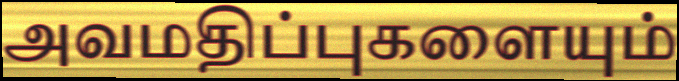
அவமதிப்புகளையும்